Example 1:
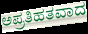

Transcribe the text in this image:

ಅಪ್ರತಿಹತವಾದ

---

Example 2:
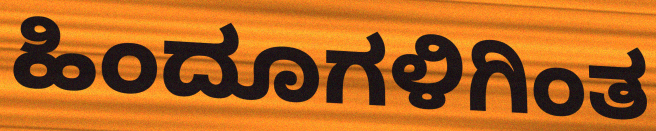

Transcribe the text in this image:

ಹಿಂದೂಗಳಿಗಿಂತ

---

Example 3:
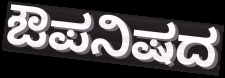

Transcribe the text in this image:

ಔಪನಿಷದ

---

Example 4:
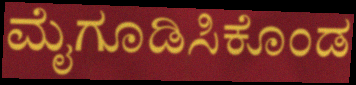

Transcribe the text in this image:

ಮೈಗೂಡಿಸಿಕೊಂಡ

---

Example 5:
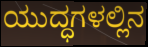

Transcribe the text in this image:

ಯುದ್ಧಗಳಲ್ಲಿನ